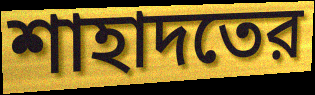
শাহাদতের